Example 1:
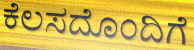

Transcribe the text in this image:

ಕೆಲಸದೊಂದಿಗೆ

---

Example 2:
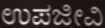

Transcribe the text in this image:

ಉಪಜೀವಿ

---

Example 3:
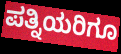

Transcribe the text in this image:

ಪತ್ನಿಯರಿಗೂ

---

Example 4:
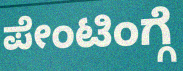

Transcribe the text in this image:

ಪೇಂಟಿಂಗ್ಗೆ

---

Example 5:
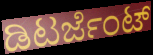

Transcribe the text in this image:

ಡಿಟರ್ಜೆಂಟ್